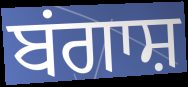
ਬਂਗਾਸ਼